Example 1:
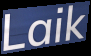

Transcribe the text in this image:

Laik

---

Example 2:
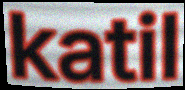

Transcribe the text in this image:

katil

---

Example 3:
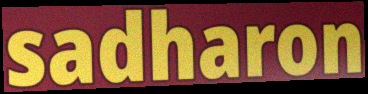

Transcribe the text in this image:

sadharon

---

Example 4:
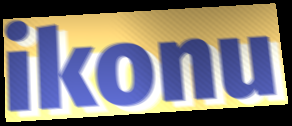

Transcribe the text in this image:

ikonu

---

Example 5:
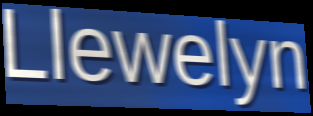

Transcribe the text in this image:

Llewelyn